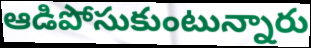
ఆడిపోసుకుంటున్నారు